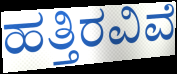
ಹತ್ತಿರವಿವೆ